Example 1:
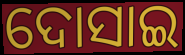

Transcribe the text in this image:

ଦୋସାଇ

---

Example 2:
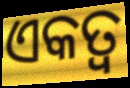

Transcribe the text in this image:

ଏକତ୍ୱ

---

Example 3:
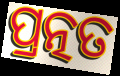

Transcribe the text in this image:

ପ୍ରତ୍ନତ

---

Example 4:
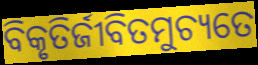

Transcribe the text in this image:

ବିକୃତିର୍ଜୀବିତମୁଚ୍ୟତେ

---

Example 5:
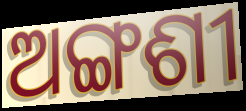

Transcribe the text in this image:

ଅଙ୍ଗଶୀ